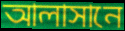
আলাসানে